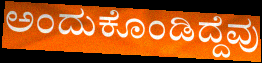
ಅಂದುಕೊಂಡಿದ್ದೆವು